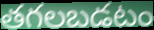
తగలబడటం